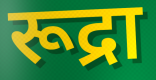
रूद्रा